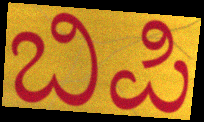
ಬಿಪಿ